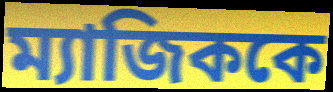
ম্যাজিককে